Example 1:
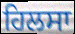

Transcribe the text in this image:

ਹਿਲਸਾ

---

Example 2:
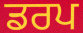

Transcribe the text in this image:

ਡਰਪ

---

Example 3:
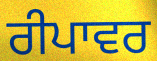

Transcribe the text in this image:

ਰੀਪਾਵਰ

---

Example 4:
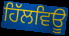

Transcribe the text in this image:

ਹਿੱਲਵਿਊ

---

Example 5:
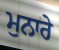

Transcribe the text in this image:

ਮੁਨਾਰੇ